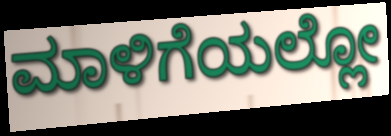
ಮಾಳಿಗೆಯಲ್ಲೋ